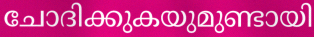
ചോദിക്കുകയുമുണ്ടായി